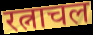
रत्नाचल